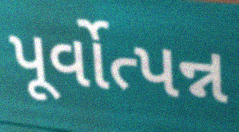
પૂર્વોત્પન્ન